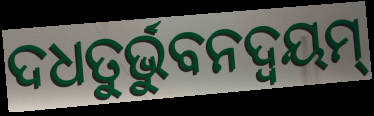
ଦଧତୁର୍ଭୁବନଦ୍ଵୟମ୍